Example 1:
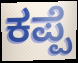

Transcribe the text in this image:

ಕಪ್ಪೆ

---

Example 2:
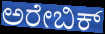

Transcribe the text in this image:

ಅರೇಬಿಕ್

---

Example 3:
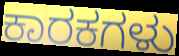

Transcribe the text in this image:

ಕಾರಕಗಳು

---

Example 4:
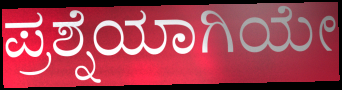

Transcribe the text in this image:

ಪ್ರಶ್ನೆಯಾಗಿಯೇ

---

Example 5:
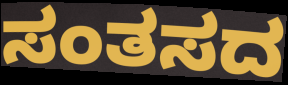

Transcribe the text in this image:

ಸಂತಸದ